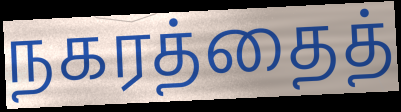
நகரத்தைத்